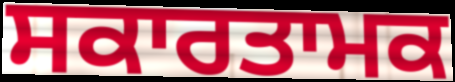
ਸਕਾਰਤਾਮਕ